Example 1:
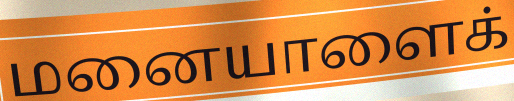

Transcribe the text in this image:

மனையாளைக்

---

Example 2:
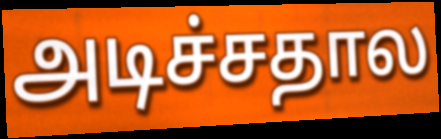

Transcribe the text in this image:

அடிச்சதால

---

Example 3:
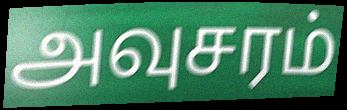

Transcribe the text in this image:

அவுசரம்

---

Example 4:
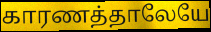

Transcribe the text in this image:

காரணத்தாலேயே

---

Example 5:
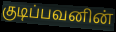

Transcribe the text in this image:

குடிப்பவனின்